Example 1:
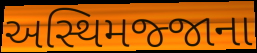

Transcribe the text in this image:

અસ્થિમજ્જાના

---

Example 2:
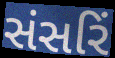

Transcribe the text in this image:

સંસરિં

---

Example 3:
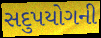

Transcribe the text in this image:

સદુપયોગની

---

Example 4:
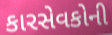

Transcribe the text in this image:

કારસેવકોની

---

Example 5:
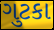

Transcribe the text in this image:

ગુટકા